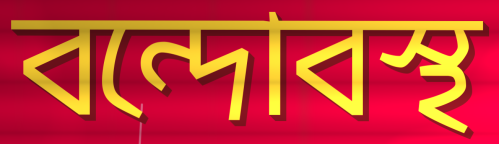
বন্দোবস্থ